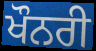
ਖੌਨਰੀ